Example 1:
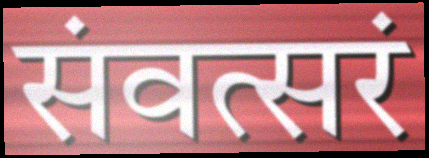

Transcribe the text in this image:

संवत्सरं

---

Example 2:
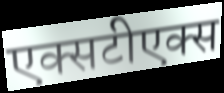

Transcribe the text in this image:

एक्सटीएक्स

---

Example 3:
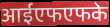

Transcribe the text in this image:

आईएफएफके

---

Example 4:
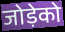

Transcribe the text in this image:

जोड़ेको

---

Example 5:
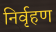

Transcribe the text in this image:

निर्वृहण